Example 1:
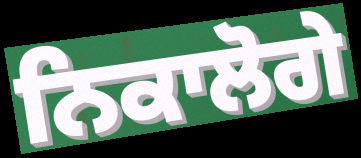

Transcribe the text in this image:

ਨਿਕਾਲੋਗੇ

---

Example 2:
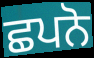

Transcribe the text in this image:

ਛਪਨੋ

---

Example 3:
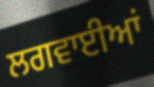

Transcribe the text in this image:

ਲਗਵਾਈਆਂ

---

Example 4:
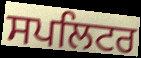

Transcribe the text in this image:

ਸਪਲਿਟਰ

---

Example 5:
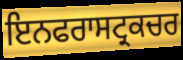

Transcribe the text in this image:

ਇਨਫਰਾਸਟ੍ਰਕਚਰ